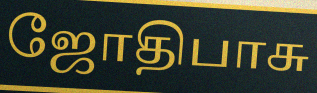
ஜோதிபாசு